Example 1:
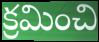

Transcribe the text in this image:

క్రమించి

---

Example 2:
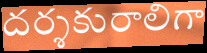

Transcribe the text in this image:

దర్శకురాలిగా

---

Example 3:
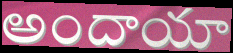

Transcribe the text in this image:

అందాయా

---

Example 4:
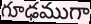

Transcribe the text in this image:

గూఢముగా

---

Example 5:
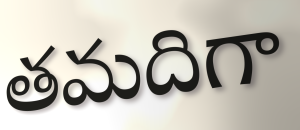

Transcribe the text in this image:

తమదిగా